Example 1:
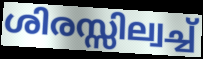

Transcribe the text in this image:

ശിരസ്സില്വച്ച്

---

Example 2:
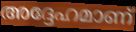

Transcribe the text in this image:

അദ്ദേഹമാണ്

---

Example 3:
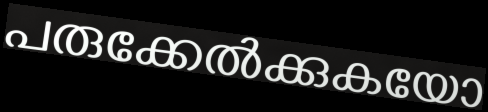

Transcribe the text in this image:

പരുക്കേൽക്കുകയോ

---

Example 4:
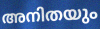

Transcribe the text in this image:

അനിതയും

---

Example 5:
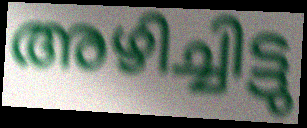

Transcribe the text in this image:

അഴിച്ചിട്ടു